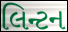
લિન્ટન